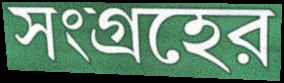
সংগ্রহের